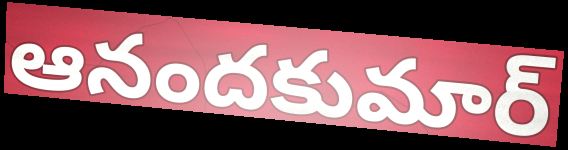
ఆనందకుమార్